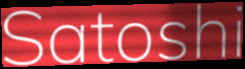
Satoshi